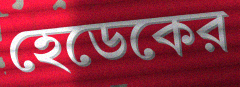
হেডেকের